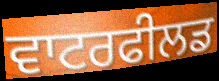
ਵਾਟਰਫੀਲਡ